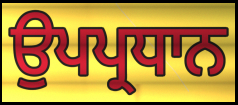
ਉਪਪ੍ਰਧਾਨ